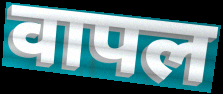
वापल